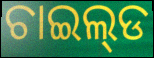
ଚାଇଲ୍‌ଡ